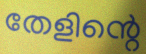
തേളിന്റെ